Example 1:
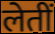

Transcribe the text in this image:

लेतीं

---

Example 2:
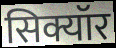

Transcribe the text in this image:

सिक्यॉर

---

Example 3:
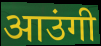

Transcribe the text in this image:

आउंगी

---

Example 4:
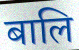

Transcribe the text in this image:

बालि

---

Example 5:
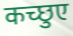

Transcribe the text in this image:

कच्छुए